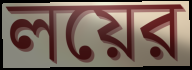
লয়ের